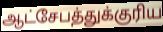
ஆட்சேபத்துக்குரிய